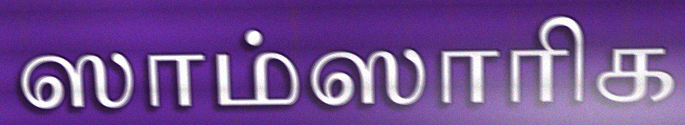
ஸாம்ஸாரிக